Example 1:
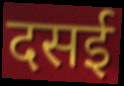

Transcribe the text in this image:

दसई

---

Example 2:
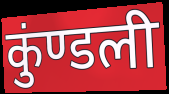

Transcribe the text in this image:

कुंण्डली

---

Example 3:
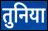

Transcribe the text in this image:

तुनिया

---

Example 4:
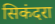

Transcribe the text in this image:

सिकंदरा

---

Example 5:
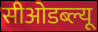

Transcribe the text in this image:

सीओडब्ल्यू